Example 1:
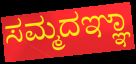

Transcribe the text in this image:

ಸಮ್ಮದಞ್ಞಾ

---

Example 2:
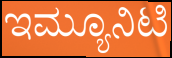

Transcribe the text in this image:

ಇಮ್ಯೂನಿಟಿ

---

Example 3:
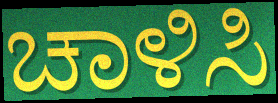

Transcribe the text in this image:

ಚಾಳಿಸಿ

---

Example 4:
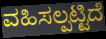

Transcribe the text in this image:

ವಹಿಸಲ್ಪಟ್ಟಿದೆ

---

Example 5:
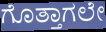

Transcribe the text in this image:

ಗೊತ್ತಾಗಲೇ